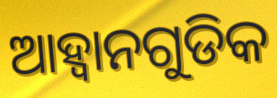
ଆହ୍ୱାନଗୁଡିକ